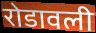
रोडावली